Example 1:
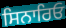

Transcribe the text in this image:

ਸਿਨਾਰਿਓ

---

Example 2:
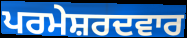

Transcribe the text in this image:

ਪਰਮੇਸ਼ਰਦਵਾਰ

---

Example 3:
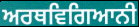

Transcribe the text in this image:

ਅਰਥਵਿਗਿਆਨੀ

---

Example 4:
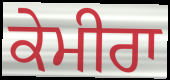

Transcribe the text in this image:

ਕੇਮੀਰਾ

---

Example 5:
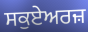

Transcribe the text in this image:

ਸਕੁਏਅਰਜ਼